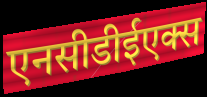
एनसीडीईएक्स